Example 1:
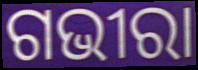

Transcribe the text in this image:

ଗଭୀରା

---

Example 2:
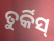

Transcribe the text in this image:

ତୁର୍କିସ୍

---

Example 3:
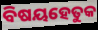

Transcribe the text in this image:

ବିଷୟହେତୁକ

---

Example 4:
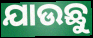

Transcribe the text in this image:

ଯାଉଛୁ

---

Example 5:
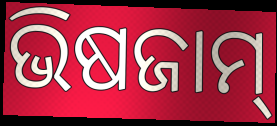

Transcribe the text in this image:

ଭିଷଜାମ୍